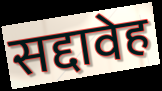
सद्दावेह